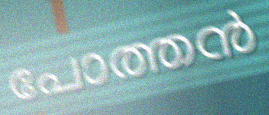
പോത്തൻ